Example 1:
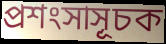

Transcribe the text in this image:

প্ৰশংসাসূচক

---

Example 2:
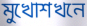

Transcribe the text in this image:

মুখোশখনে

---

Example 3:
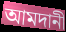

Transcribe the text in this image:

আমদানী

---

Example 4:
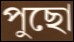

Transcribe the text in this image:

পুছো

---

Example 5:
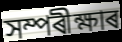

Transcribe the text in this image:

সম্পৰীক্ষাৰ